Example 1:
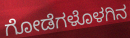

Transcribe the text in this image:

ಗೋಡೆಗಳೊಳಗಿನ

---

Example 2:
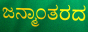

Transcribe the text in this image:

ಜನ್ಮಾಂತರದ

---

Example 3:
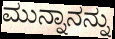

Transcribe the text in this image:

ಮುನ್ನಾನನ್ನು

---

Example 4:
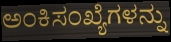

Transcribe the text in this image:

ಅಂಕಿಸಂಖ್ಯೆಗಳನ್ನು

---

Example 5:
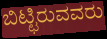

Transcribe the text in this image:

ಬಿಟ್ಟಿರುವವರು